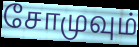
சோமுவும்